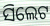
ସିଲେଟ